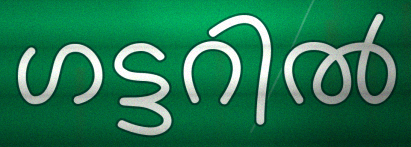
ഗട്ടറിൽ